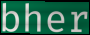
bher